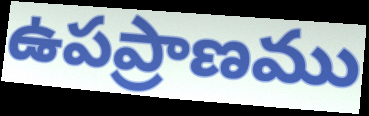
ఉపప్రాణము